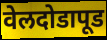
वेलदोडापूड